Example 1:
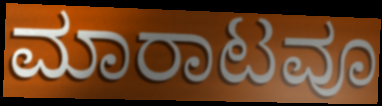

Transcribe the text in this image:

ಮಾರಾಟವೂ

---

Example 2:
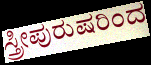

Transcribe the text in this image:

ಸ್ತ್ರೀಪುರುಷರಿಂದ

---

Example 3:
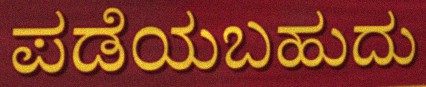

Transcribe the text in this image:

ಪಡೆಯಬಹುದು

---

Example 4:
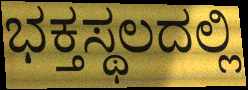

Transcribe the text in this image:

ಭಕ್ತಸ್ಥಲದಲ್ಲಿ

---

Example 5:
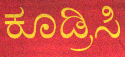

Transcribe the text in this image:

ಕೂಡ್ರಿಸಿ